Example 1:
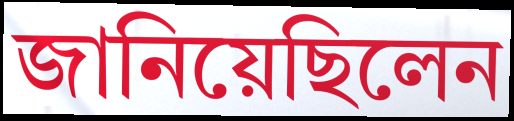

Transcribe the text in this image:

জানিয়েছিলেন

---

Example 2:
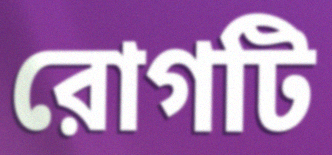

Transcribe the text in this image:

রোগটি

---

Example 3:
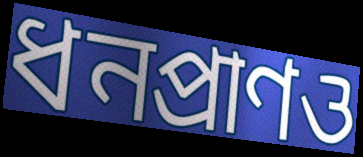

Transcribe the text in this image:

ধনপ্রাণও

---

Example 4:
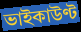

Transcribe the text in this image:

ভাইকাউণ্ট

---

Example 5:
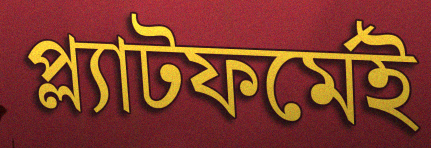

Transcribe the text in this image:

প্ল্যাটফর্মেই